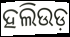
ହଲିଉଡ଼